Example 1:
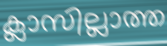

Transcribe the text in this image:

ക്ലാസില്ലാത്ത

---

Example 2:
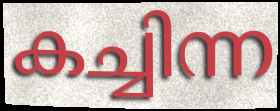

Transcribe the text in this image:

കച്ചിന്ന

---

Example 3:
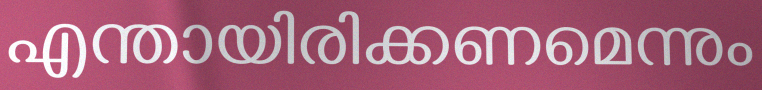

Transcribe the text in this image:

എന്തായിരിക്കണമെന്നും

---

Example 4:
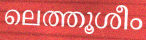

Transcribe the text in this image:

ലെത്തൂശീം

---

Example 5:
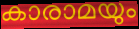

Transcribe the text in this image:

കാരാമയും